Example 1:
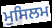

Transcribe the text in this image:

ਮੁਸਿਲਮ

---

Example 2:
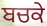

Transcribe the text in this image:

ਬਚਕੇ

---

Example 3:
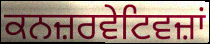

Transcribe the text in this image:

ਕਨਜ਼ਰਵੇਟਿਵਜ਼ਾਂ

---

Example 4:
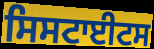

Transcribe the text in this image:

ਸਿਸਟਾਈਟਸ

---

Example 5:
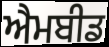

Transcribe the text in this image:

ਐਮਬੀਡ